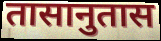
तासानुतास